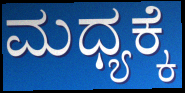
ಮಧ್ಯಕ್ಕೆ